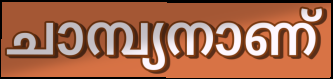
ചാമ്പ്യനാണ്